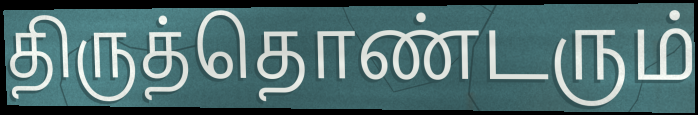
திருத்தொண்டரும்